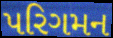
પરિગમન